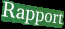
Rapport